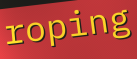
roping